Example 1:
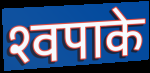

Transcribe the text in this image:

श्वपाके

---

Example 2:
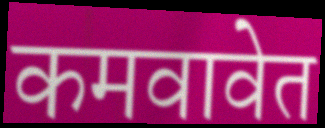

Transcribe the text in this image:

कमवावेत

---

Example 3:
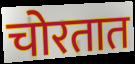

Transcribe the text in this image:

चोरतात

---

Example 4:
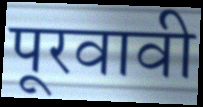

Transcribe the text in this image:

पूरवावी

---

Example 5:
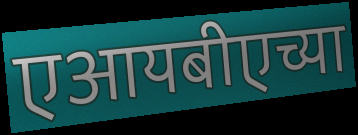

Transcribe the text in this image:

एआयबीएच्या